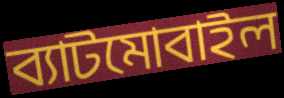
ব্যাটমোবাইল